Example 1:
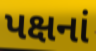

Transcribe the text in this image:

પક્ષનાં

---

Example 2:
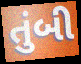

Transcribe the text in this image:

તુંબી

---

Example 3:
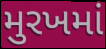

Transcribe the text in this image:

મુરખમાં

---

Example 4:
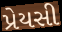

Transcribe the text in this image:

પ્રેયસી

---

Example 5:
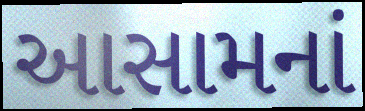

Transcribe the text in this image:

આસામનાં